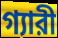
গ্যারী